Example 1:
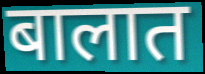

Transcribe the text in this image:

बालात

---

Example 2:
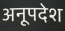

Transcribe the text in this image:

अनूपदेश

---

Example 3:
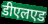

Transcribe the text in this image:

डीएलएड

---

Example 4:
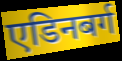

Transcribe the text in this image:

एडिनबर्ग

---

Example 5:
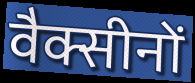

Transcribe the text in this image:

वैक्सीनों